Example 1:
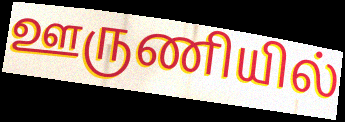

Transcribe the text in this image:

ஊருணியில்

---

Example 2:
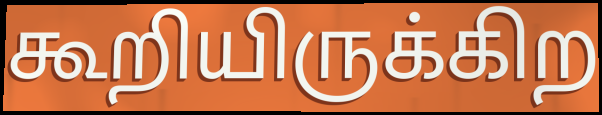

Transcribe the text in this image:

கூறியிருக்கிற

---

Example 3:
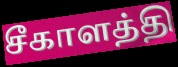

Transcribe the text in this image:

சீகாளத்தி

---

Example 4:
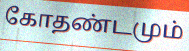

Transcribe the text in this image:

கோதண்டமும்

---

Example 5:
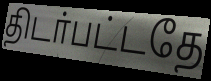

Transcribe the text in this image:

திடர்பட்டதே